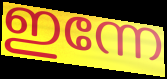
ഇന്നേ